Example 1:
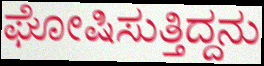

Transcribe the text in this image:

ಘೋಷಿಸುತ್ತಿದ್ದನು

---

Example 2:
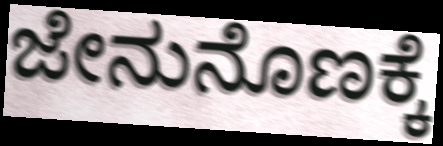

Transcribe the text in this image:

ಜೇನುನೊಣಕ್ಕೆ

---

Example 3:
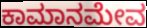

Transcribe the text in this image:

ಕಾಮಾನಮೇವ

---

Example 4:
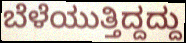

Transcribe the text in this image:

ಬೆಳೆಯುತ್ತಿದ್ದದ್ದು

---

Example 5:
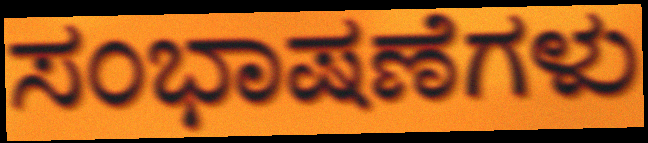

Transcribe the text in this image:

ಸಂಭಾಷಣೆಗಳು